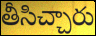
తీసిచ్చారు